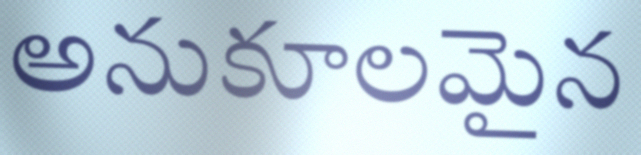
అనుకూలమైన